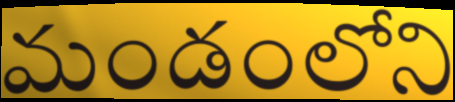
మండంలోని